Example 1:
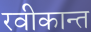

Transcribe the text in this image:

रवीकान्त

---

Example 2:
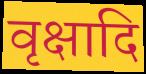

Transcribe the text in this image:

वृक्षादि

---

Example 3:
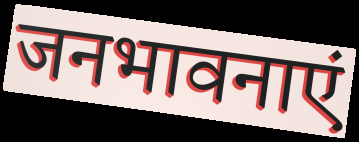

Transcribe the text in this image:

जनभावनाएं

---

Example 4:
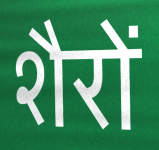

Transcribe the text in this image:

शैरों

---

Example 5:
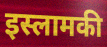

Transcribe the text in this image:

इस्लामकी